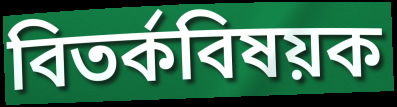
বিতর্কবিষয়ক